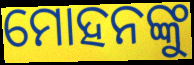
ମୋହନଙ୍କୁ